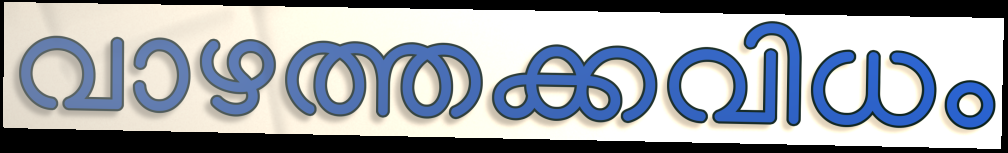
വാഴത്തക്കവിധം